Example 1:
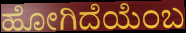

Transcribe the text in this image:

ಹೋಗಿದೆಯೆಂಬ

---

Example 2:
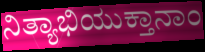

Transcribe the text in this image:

ನಿತ್ಯಾಭಿಯುಕ್ತಾನಾಂ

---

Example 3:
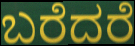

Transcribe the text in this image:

ಬರೆದರೆ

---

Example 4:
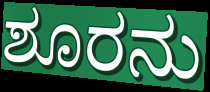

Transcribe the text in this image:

ಶೂರನು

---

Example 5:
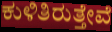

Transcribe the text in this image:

ಕುಳಿತಿರುತ್ತೇವೆ